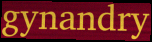
gynandry